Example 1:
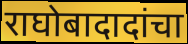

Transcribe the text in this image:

राघोबादादांचा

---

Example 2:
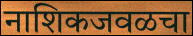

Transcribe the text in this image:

नाशिकजवळचा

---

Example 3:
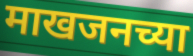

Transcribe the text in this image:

माखजनच्या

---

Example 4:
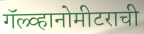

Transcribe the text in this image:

गॅल्व्हानोमीटराची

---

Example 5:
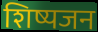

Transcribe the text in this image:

शिष्यजन